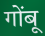
गोंबू